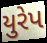
યુરેપ